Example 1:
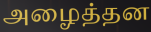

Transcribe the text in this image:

அழைத்தன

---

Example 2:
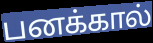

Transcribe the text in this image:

பனக்கால்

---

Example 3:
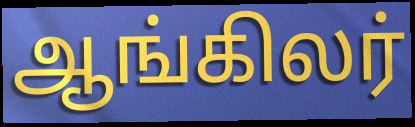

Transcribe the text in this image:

ஆங்கிலர்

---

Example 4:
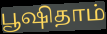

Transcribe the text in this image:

பூஷிதாம்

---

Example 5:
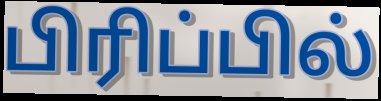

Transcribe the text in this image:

பிரிப்பில்